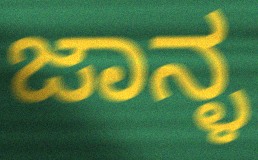
ಜಾನ್ಳ